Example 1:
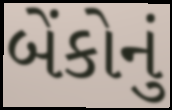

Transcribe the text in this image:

બેંકોનું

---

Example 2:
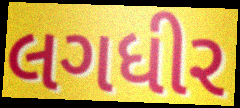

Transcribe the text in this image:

લગધીર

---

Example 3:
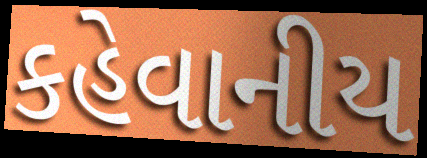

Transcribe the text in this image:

કહેવાનીય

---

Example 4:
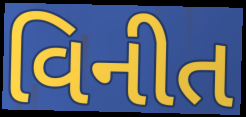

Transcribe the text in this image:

વિનીત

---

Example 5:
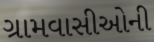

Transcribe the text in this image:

ગ્રામવાસીઓની